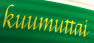
kuumuttai